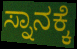
ಸ್ನಾನಕ್ಕೆ